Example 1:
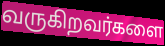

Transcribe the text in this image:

வருகிறவர்களை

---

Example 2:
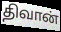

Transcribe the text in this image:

திவான்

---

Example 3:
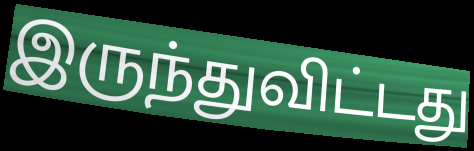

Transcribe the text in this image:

இருந்துவிட்டது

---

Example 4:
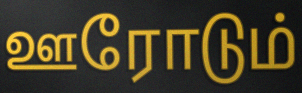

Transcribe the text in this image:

ஊரோடும்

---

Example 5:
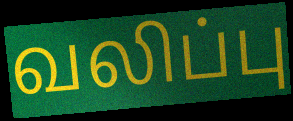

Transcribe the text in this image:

வலிப்பு